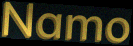
Namo